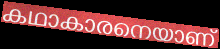
കഥാകാരനെയാണ്